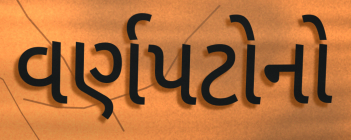
વર્ણપટોનો